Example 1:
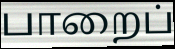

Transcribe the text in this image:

பாறைப்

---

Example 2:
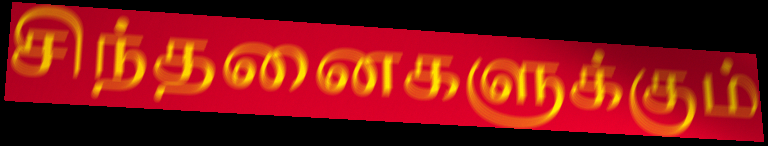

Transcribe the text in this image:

சிந்தனைகளுக்கும்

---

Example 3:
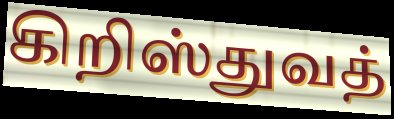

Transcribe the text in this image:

கிறிஸ்துவத்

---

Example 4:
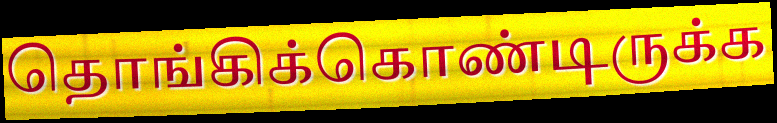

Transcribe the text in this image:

தொங்கிக்கொண்டிருக்க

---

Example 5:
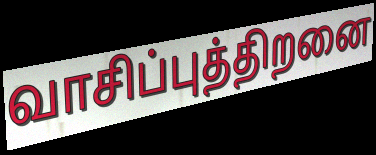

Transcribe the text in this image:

வாசிப்புத்திறனை